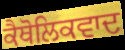
ਕੈਥੋਲਿਕਵਾਦ